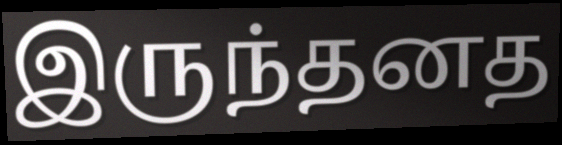
இருந்தனத